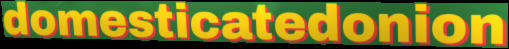
domesticatedonion